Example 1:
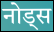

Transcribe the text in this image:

नोड्स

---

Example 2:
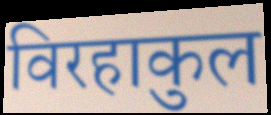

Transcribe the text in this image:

विरहाकुल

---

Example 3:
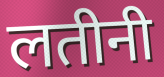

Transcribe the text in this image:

लतीनी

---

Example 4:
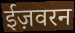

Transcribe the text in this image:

ईज़वरन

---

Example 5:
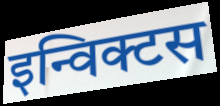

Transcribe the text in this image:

इन्विक्टस